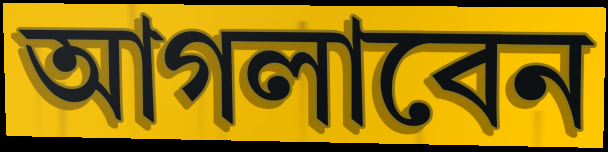
আগলাবেন